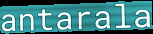
antarala